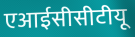
एआईसीसीटीयू